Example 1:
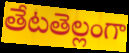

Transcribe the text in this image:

తేటతెల్లంగా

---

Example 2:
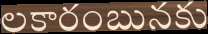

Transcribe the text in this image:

లకారంబునకు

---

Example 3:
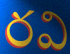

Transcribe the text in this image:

రవి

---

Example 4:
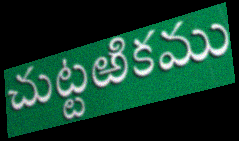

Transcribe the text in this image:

చుట్టఱికము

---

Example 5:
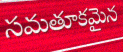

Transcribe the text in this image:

సమతూకమైన